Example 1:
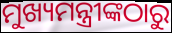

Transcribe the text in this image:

ମୁଖ୍ୟମନ୍ତ୍ରୀଙ୍କଠାରୁ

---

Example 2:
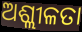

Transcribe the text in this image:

ଅଶ୍ଲୀଳତା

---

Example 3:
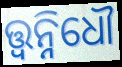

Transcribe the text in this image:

ତ୍ତ୍ଵନ୍ନିଧୌ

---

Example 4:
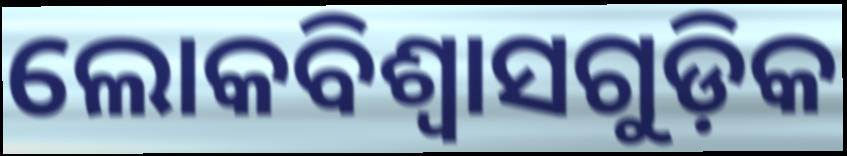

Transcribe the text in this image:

ଲୋକବିଶ୍ୱାସଗୁଡ଼ିକ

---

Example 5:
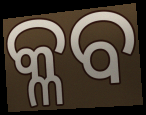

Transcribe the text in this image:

କ୍ଳବ